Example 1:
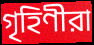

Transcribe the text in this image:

গৃহিণীরা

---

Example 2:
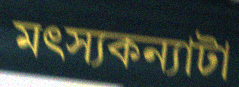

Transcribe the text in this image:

মৎস্যকন্যাটা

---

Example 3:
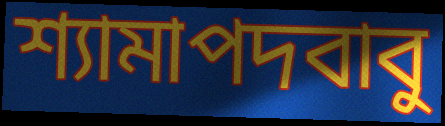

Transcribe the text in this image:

শ্যামাপদবাবু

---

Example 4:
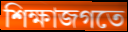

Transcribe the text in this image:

শিক্ষাজগতে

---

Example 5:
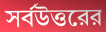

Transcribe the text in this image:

সর্বউত্তরের